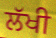
ਲੱਖੀ